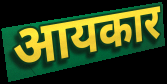
आयकार